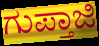
ಗುಪ್ತಾಜಿ